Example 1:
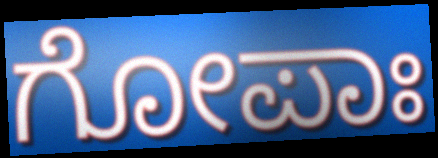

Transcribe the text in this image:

ಗೋಪಾಃ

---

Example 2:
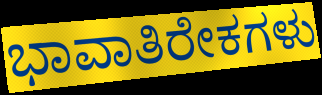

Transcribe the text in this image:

ಭಾವಾತಿರೇಕಗಳು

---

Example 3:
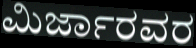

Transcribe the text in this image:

ಮಿರ್ಜಾರವರ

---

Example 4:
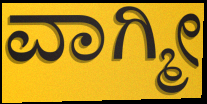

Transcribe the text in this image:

ವಾಗ್ಮೀ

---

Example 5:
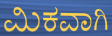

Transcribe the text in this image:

ಮಿಕವಾಗಿ